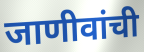
जाणीवांची